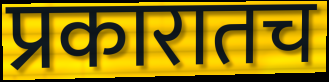
प्रकारातच